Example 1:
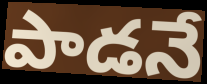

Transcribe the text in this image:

పాడనే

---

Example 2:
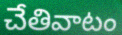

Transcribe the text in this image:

చేతివాటం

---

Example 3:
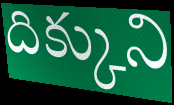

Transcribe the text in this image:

దిక్కుని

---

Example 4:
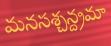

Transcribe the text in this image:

మనసశ్చన్ద్రమా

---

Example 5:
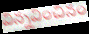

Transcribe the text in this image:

విన్నవించినం